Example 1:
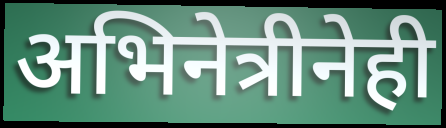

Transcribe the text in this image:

अभिनेत्रीनेही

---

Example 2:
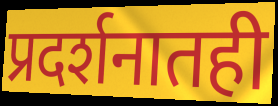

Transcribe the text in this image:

प्रदर्शनातही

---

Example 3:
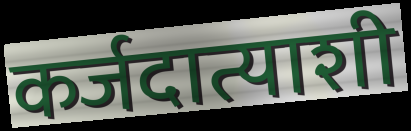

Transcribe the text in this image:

कर्जदात्याशी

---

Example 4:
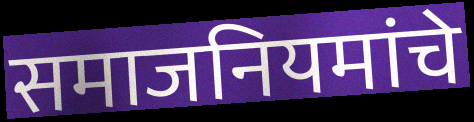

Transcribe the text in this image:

समाजनियमांचे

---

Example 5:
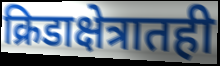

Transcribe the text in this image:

क्रिडाक्षेत्रातही